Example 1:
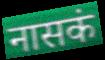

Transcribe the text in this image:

नासकं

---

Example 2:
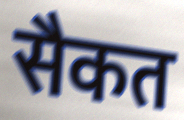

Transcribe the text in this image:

सैकत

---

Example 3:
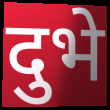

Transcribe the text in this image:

दुभे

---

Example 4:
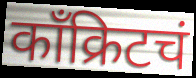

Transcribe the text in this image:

काँक्रिटचं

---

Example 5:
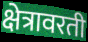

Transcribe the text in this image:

क्षेत्रावरती